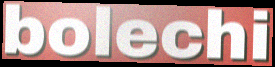
bolechi